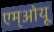
एम्ओयू